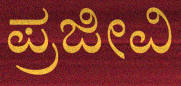
ಪ್ರಜೀವಿ